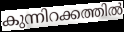
കുന്നിറക്കത്തിൽ